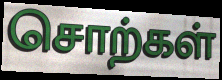
சொற்கள்